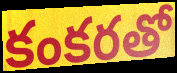
కంకరతో